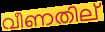
വീണതില്